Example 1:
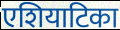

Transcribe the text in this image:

एशियाटिका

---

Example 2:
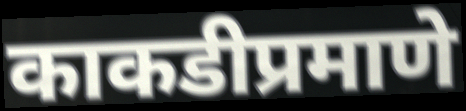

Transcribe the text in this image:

काकडीप्रमाणे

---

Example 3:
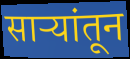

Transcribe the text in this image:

साऱ्यांतून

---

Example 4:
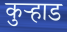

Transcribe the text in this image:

कुर्‍हाड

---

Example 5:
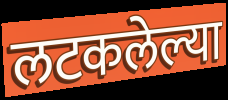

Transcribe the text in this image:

लटकलेल्या